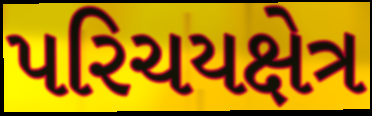
પરિચયક્ષેત્ર